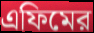
এফিমের